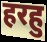
हरहु